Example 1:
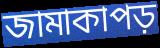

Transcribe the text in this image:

জামাকাপড়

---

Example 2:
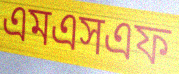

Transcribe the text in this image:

এমএসএফ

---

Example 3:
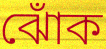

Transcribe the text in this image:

ঝোঁক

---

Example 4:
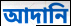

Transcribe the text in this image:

আদানি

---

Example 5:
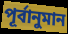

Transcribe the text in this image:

পূর্বানুমান